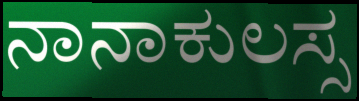
ನಾನಾಕುಲಸ್ಸ